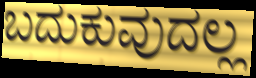
ಬದುಕುವುದಲ್ಲ